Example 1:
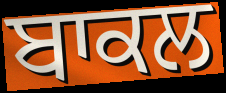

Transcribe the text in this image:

ਬਾਕਲ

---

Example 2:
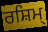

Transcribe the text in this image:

ਰਸ਼ਿਮ੍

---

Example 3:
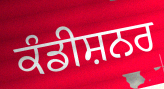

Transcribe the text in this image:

ਕੰਡੀਸ਼ਨਰ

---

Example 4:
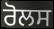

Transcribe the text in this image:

ਰੋਲਸ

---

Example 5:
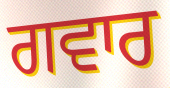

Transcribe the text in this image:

ਗਵਾਰ